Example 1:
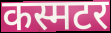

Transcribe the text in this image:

कस्मटर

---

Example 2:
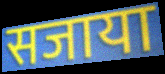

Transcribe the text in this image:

सजाया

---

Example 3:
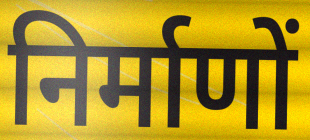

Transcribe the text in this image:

निर्माणों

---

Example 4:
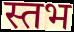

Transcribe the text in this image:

स्तभ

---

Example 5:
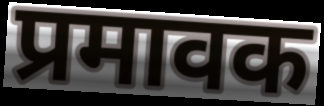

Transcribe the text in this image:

प्रमावक